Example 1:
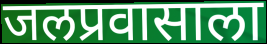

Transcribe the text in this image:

जलप्रवासाला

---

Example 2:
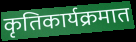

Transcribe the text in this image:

कृतिकार्यक्रमात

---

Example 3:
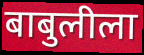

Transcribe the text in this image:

बाबुलीला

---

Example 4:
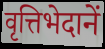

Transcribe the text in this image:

वृत्तिभेदानें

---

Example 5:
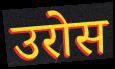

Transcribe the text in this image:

उरोस